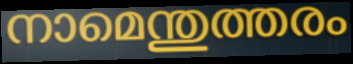
നാമെന്തുത്തരം